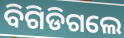
ବିଗିଡିଗଲେ